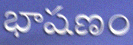
భాషణం